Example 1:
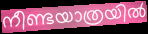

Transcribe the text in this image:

നീണ്ടയാത്രയിൽ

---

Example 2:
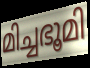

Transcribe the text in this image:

മിച്ചഭൂമി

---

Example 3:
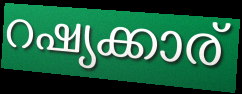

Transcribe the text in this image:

റഷ്യക്കാര്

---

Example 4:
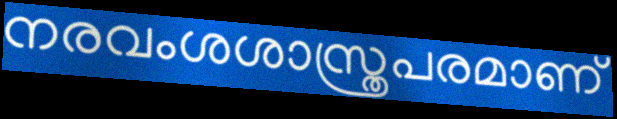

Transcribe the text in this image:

നരവംശശാസ്ത്രപരമാണ്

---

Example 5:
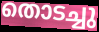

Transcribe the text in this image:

തൊടച്ചു